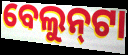
ବେଲୁନ୍‌ଟା